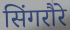
सिंगरौरे